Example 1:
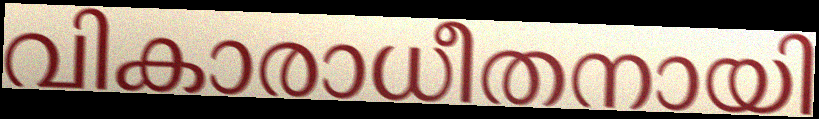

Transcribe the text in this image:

വികാരാധീതനായി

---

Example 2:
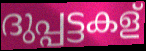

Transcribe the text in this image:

ദുപ്പട്ടകള്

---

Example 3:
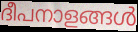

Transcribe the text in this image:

ദീപനാളങ്ങൾ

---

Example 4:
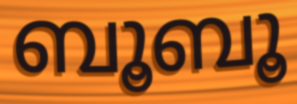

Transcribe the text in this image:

ബൂബൂ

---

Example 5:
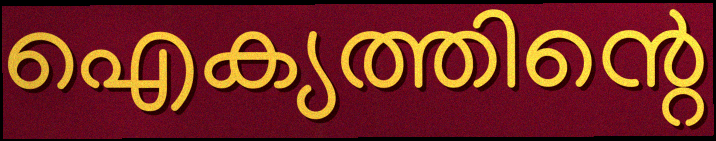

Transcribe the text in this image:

ഐക്യത്തിന്റെ